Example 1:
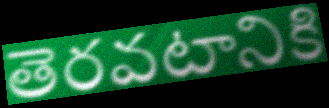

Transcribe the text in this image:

తెరవటానికి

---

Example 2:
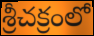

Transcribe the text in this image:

శ్రీచక్రంలో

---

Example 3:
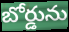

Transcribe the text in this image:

బోర్డును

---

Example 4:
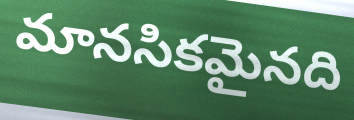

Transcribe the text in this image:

మానసికమైనది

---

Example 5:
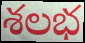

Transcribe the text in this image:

శలభ